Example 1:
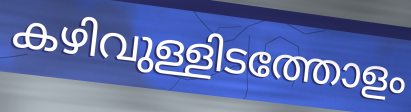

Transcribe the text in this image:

കഴിവുള്ളിടത്തോളം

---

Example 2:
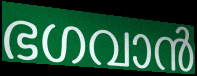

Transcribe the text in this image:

ഭഗവാൻ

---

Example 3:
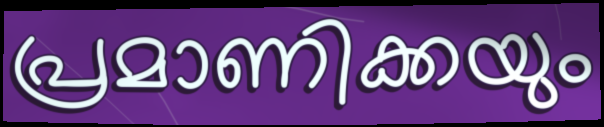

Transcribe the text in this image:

പ്രമാണിക്കയും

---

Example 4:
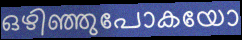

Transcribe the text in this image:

ഒഴിഞ്ഞുപോകയോ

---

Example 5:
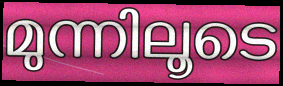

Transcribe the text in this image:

മുന്നിലൂടെ